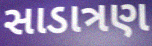
સાડાત્રણ